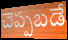
చెప్పబడే